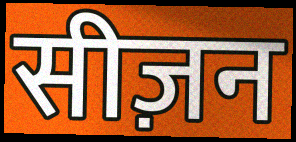
सीज़न